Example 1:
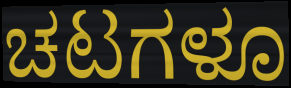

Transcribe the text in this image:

ಚಟಗಳೂ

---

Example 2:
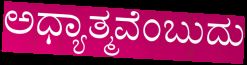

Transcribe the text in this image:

ಅಧ್ಯಾತ್ಮವೆಂಬುದು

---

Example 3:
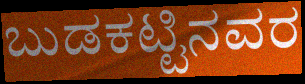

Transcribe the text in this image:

ಬುಡಕಟ್ಟಿನವರ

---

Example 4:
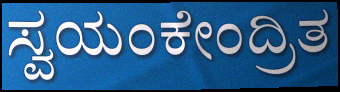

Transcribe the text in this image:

ಸ್ವಯಂಕೇಂದ್ರಿತ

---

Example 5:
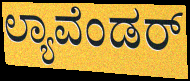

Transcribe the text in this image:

ಲ್ಯಾವೆಂಡರ್